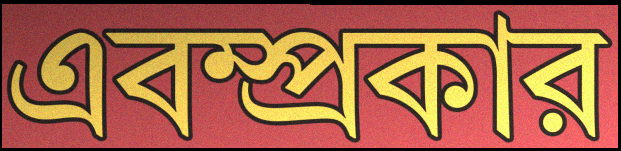
এবম্প্রকার